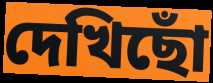
দেখিছোঁ